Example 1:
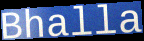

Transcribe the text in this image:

Bhalla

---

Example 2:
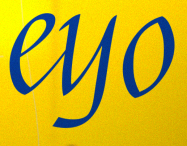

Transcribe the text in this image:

eyo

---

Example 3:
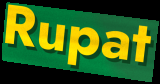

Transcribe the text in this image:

Rupat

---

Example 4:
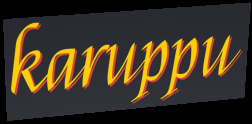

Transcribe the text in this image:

karuppu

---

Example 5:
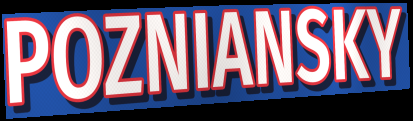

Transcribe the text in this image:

POZNIANSKY